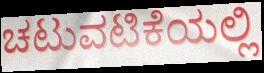
ಚಟುವಟಿಕೆಯಲ್ಲಿ